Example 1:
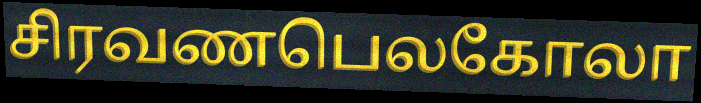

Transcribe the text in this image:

சிரவணபெலகோலா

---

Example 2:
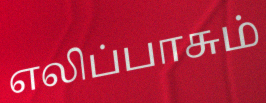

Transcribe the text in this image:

எலிப்பாசும்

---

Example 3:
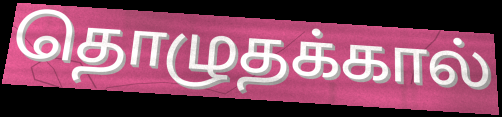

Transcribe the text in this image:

தொழுதக்கால்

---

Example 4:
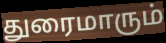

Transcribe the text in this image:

துரைமாரும்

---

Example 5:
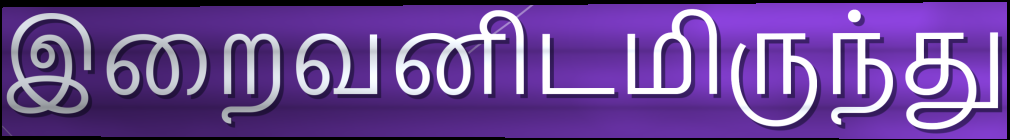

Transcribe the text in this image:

இறைவனிடமிருந்து